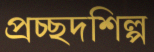
প্রচ্ছদশিল্প